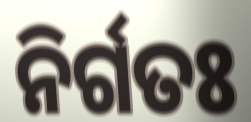
ନିର୍ଗତଃ